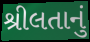
શ્રીલતાનું